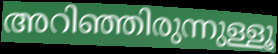
അറിഞ്ഞിരുന്നുള്ളൂ